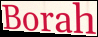
Borah